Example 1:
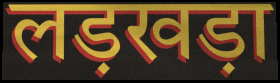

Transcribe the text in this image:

लड़खड़ा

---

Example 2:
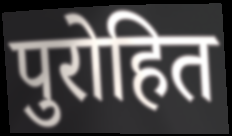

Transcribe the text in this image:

पुरोहित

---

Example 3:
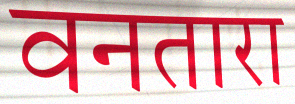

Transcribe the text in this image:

वनतारा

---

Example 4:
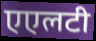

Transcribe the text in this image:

एएलटी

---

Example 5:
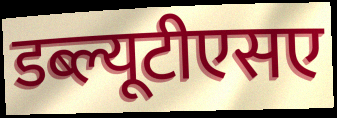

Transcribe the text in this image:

डब्ल्यूटीएसए